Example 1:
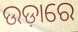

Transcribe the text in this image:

ଉଡ଼ାରେ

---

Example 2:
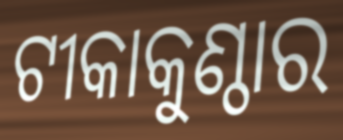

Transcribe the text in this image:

ଟୀକାକୁଣ୍ଠାର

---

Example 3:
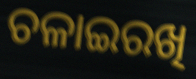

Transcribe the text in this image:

ଚଳାଇରଖି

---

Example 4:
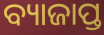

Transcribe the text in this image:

ବ୍ୟାଜାପ୍ତ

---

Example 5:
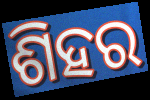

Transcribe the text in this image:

ଶିହର